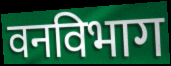
वनविभाग